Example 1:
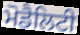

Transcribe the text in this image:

ਮੋਡੈਲਿਟੀ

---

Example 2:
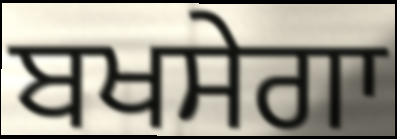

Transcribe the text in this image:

ਬਖਸੇਗਾ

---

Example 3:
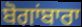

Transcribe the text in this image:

ਬੋਗਾਂਬਾਰਾ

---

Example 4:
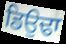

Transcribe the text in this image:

ਡਿਉਢਾ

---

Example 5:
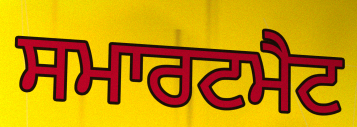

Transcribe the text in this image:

ਸਮਾਰਟਮੈਟ